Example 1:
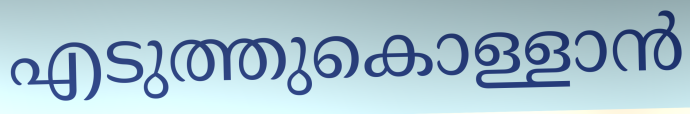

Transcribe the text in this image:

എടുത്തുകൊള്ളാൻ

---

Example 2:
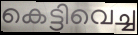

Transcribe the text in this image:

കെട്ടിവെച്ച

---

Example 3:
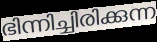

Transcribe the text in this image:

ഭിന്നിച്ചിരിക്കുന്ന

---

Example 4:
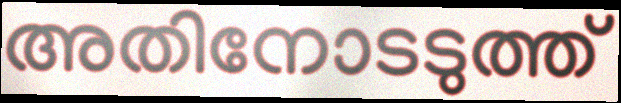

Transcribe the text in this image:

അതിനോടടുത്ത്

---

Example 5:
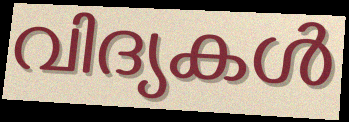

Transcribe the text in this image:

വിദ്യകൾ